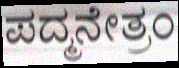
ಪದ್ಮನೇತ್ರಂ